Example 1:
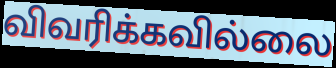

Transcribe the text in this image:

விவரிக்கவில்லை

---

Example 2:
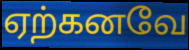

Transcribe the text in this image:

ஏற்கனவே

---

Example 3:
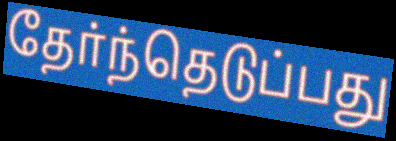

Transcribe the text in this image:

தேர்ந்தெடுப்பது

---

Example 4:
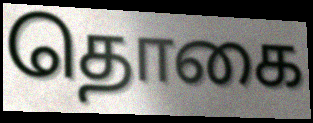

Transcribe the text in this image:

தொகை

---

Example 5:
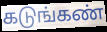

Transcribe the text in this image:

கடுங்கண்